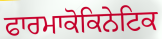
ਫਾਰਮਾਕੋਕਿਨੇਟਿਕ